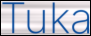
Tuka